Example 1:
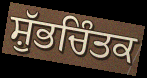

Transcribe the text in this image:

ਸ਼ੁੱਭਚਿੰਤਕ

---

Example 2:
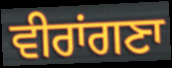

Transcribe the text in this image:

ਵੀਰਾਂਗਣਾ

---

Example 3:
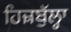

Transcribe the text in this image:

ਹਿਜ਼ਬੁੱਲ੍ਹਾ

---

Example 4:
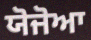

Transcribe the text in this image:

ਯੋਜੋਆ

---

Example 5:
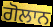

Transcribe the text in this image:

ਗੋਲਾਨ